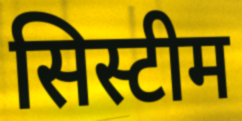
सिस्टीम